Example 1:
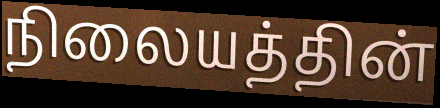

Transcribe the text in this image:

நிலையத்தின்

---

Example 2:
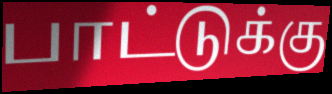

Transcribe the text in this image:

பாட்டுக்கு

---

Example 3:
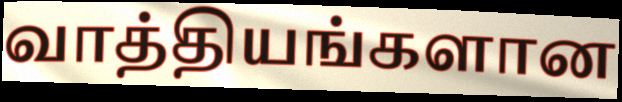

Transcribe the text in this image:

வாத்தியங்களான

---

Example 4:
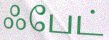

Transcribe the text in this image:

ஃபேட்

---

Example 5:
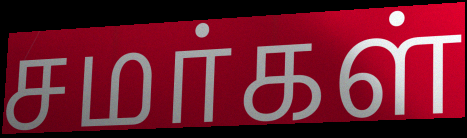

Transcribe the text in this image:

சமர்கள்